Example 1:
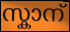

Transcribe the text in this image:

സ്കാന്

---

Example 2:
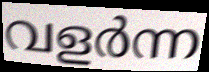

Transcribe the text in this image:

വളർന്ന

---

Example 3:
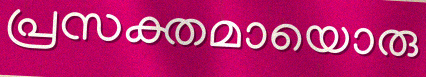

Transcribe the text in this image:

പ്രസക്തമായൊരു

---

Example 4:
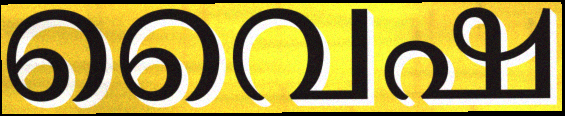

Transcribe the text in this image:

വൈഷ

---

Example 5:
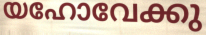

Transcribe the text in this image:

യഹോവേക്കു